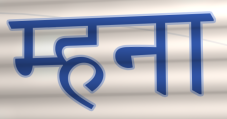
म्हना